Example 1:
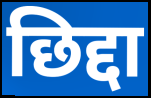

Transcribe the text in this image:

छिद्दा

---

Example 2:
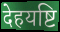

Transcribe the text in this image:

देहयष्टि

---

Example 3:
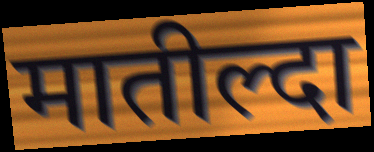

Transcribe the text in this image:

मातील्‍दा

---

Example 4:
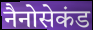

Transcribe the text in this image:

नैनोसेकंड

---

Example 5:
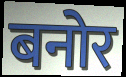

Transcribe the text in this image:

बनोर